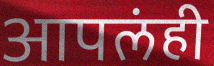
आपलंही